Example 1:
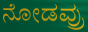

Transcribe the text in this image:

ನೋಡವ್ರು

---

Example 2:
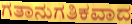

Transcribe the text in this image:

ಗತಾನುಗತಿಕವಾದ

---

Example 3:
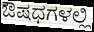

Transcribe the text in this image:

ಔಷಧಗಳಲ್ಲಿ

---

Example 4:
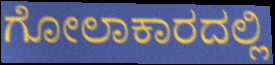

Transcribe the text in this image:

ಗೋಲಾಕಾರದಲ್ಲಿ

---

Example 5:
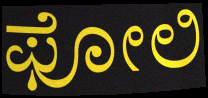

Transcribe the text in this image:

ಫೋಲಿ